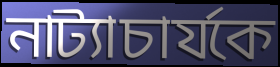
নাট্যাচার্যকে